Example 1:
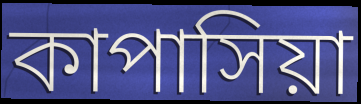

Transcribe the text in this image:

কাপাসিয়া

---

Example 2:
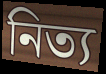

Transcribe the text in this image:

নিত্য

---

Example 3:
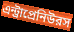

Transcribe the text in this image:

এন্ট্রাপ্রেনিউরস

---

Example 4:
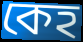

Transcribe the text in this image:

কেহ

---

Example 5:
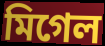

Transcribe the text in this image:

মিগেল